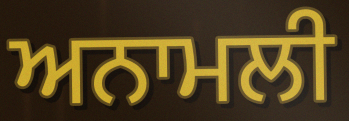
ਅਨਾਮਲੀ